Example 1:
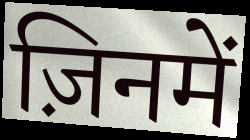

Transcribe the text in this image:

ज़िनमें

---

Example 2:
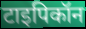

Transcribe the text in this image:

टाइपिकॉन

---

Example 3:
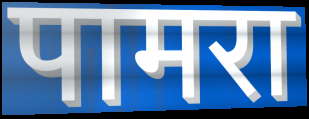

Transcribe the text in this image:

पामरा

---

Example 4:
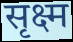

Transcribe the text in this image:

सृक्ष्म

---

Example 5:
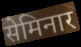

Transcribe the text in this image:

सेमिनार